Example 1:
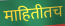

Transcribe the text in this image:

माहितीतच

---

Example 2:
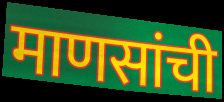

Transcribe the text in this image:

माणसांची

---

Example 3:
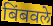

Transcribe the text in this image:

बिंबवले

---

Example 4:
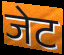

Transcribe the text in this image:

जेट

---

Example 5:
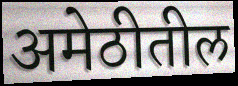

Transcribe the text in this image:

अमेठीतील